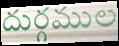
దుర్గముల